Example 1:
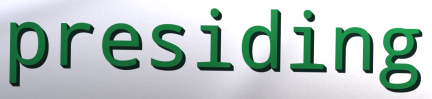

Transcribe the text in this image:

presiding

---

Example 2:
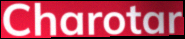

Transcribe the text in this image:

Charotar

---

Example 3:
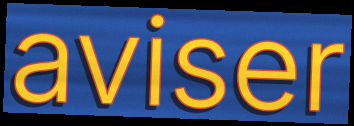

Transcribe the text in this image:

aviser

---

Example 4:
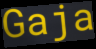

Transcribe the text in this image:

Gaja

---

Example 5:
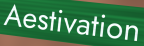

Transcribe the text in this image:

Aestivation